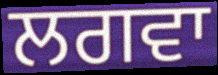
ਲਗਵਾ